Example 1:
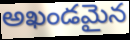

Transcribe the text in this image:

అఖండమైన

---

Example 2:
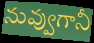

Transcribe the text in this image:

నువ్వుగానీ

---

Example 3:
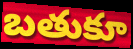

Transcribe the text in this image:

బతుకూ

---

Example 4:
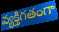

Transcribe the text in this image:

వ్యక్తిగతంగా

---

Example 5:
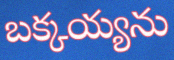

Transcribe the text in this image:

బక్కయ్యను